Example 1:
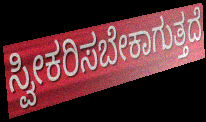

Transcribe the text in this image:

ಸ್ವೀಕರಿಸಬೇಕಾಗುತ್ತದೆ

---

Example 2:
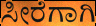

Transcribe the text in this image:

ಸೀರೆಗಾಗಿ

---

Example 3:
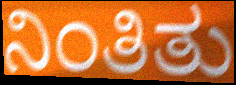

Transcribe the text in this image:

ನಿಂತಿತು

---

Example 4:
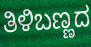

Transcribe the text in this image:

ತಿಳಿಬಣ್ಣದ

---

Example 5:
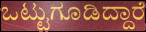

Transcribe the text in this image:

ಒಟ್ಟುಗೂಡಿದ್ದಾರೆ